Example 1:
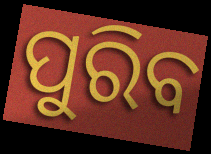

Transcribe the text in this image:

ପୁରିବ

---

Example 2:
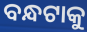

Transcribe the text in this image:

ବନ୍ଧଟାକୁ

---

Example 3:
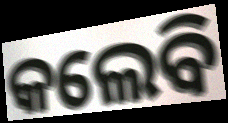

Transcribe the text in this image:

କଲେବି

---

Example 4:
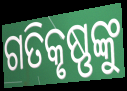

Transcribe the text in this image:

ଗତିକୃଷ୍ଣଙ୍କୁ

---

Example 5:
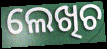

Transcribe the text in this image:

ଲେଖିଚ